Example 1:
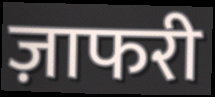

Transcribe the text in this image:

ज़ाफरी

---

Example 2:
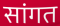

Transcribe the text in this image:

सांगत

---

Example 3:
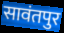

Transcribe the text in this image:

सावंतपुर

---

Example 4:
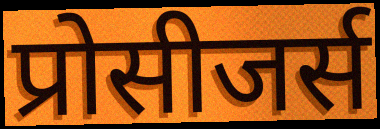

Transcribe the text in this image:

प्रोसीजर्स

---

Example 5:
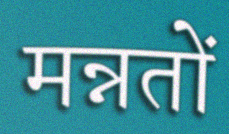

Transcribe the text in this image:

मन्नतों